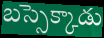
బస్సెక్కాడు